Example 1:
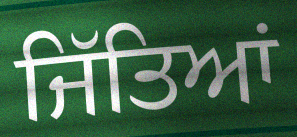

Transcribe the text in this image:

ਜਿੱਤਿਆਂ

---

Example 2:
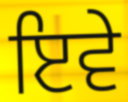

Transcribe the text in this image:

ਇਵੇ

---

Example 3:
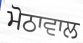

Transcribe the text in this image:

ਮੋਠਾਵਾਲ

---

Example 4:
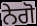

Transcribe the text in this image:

ਨੇਗੋ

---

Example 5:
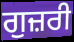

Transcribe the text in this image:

ਗੁਜ਼ਰੀ